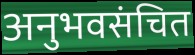
अनुभवसंचित